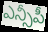
ఎన్సీపీ